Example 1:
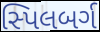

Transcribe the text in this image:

સ્પિલબર્ગ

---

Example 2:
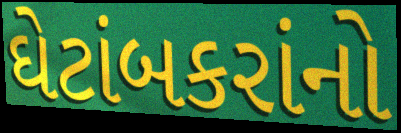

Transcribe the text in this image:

ઘેટાંબકરાંનો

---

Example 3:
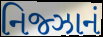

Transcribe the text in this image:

નિજ્ઝાનં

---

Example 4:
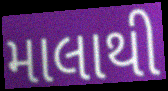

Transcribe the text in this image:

માલાથી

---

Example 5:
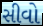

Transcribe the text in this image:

સીવો